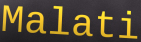
Malati